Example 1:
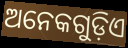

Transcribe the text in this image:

ଅନେକଗୁଡ଼ିଏ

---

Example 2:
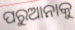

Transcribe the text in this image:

ପରୁଆନାକୁ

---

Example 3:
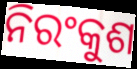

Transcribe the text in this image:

ନିରଂକୁଶ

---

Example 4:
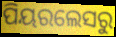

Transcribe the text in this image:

ପିୟରଲେସରୁ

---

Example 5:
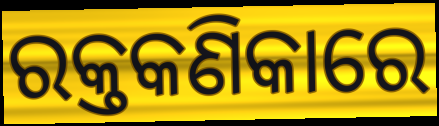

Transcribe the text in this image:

ରକ୍ତକଣିକାରେ